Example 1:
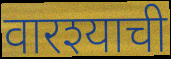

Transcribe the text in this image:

वारश्याची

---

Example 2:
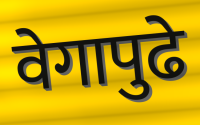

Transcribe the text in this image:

वेगापुढे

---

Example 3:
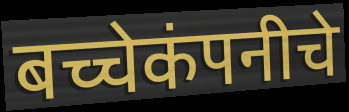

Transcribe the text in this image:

बच्चेकंपनीचे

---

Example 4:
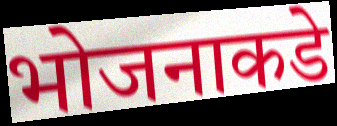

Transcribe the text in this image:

भोजनाकडे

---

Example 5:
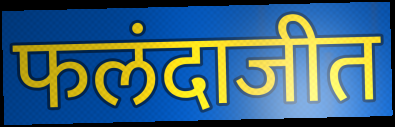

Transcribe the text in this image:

फलंदाजीत